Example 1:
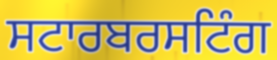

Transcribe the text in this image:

ਸਟਾਰਬਰਸਟਿੰਗ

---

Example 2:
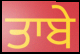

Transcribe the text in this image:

ਤਾਬੇ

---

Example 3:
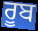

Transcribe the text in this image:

ਰੂਬ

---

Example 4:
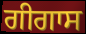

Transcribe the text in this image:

ਗੀਗਾਸ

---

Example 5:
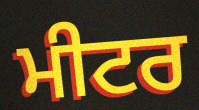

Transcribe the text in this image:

ਮੀਟਰ